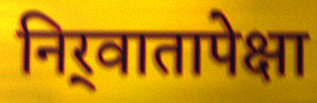
निर्वातापेक्षा